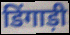
डिंगाड़ी